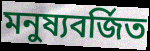
মনুষ্যবর্জিত